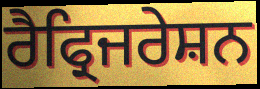
ਰੈਫ੍ਰਿਜਰੇਸ਼ਨ